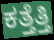
ಕತ್ತೆತ್ತಿ